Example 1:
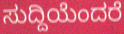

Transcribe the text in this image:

ಸುದ್ದಿಯೆಂದರೆ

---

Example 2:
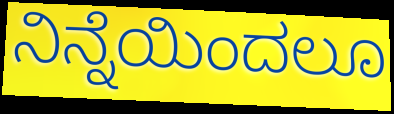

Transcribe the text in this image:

ನಿನ್ನೆಯಿಂದಲೂ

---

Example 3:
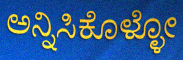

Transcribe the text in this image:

ಅನ್ನಿಸಿಕೊಳ್ಳೋ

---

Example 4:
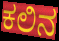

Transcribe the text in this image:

ಕಲಿನ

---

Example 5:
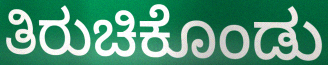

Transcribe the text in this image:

ತಿರುಚಿಕೊಂಡು